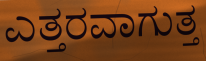
ಎತ್ತರವಾಗುತ್ತ